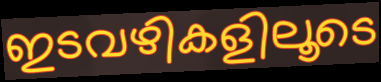
ഇടവഴികളിലൂടെ